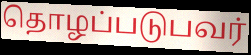
தொழப்படுபவர்